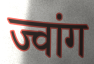
ज्वांग